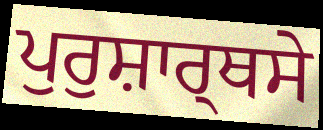
ਪੁਰੁਸ਼ਾਰ੍ਥਸੇ